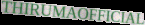
THIRUMAOFFICIAL